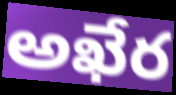
అఖేర